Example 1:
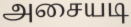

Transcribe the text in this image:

அசையடி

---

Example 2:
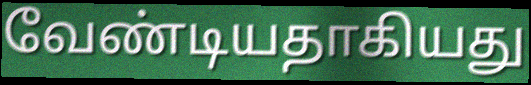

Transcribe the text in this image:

வேண்டியதாகியது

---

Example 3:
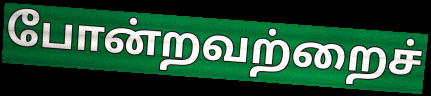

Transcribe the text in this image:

போன்றவற்றைச்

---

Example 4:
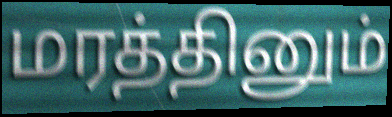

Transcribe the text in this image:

மரத்தினும்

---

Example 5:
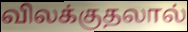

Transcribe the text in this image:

விலக்குதலால்